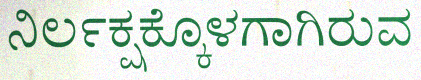
ನಿರ್ಲಕ್ಷಕ್ಕೊಳಗಾಗಿರುವ